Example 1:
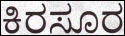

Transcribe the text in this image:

ಕಿರಸೂರ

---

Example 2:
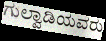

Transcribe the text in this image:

ಗುಲ್ವಾಡಿಯವರು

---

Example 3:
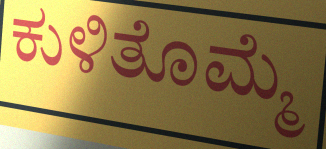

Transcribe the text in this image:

ಕುಳಿತೊಮ್ಮೆ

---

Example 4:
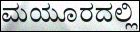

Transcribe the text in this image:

ಮಯೂರದಲ್ಲಿ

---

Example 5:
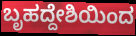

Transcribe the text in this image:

ಬೃಹದ್ದೇಶಿಯಿಂದ